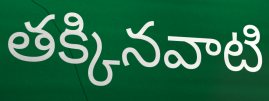
తక్కినవాటి